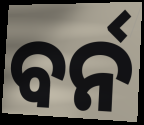
ବର୍ନ